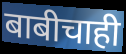
बाबीचाही